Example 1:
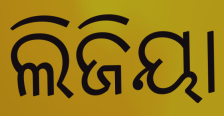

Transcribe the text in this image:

ଲିଜିୟା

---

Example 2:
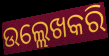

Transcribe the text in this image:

ଉଲ୍ଲେଖକରି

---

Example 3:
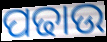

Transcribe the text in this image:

ପଢାଉ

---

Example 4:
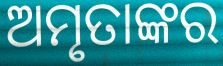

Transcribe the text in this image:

ଅମୃତାଙ୍କର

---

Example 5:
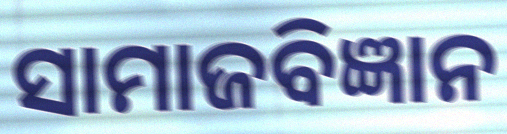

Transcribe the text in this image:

ସାମାଜବିଜ୍ଞାନ